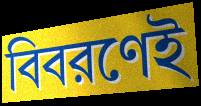
বিবরণেই